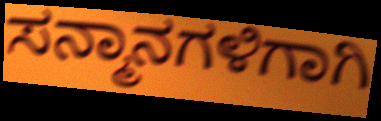
ಸನ್ಮಾನಗಳಿಗಾಗಿ